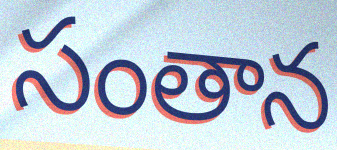
సంతాన